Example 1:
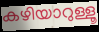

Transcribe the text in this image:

കഴിയാറുള്ളൂ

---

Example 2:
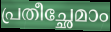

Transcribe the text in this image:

പ്രതീച്ഛേമാം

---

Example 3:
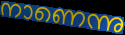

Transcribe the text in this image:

നാണെന്നു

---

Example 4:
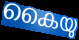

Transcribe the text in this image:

കൈയു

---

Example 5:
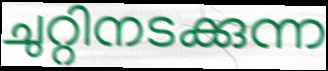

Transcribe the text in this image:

ചുറ്റിനടക്കുന്ന